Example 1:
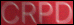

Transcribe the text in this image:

CRPD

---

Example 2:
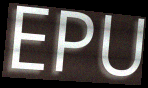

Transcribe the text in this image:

EPU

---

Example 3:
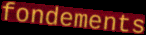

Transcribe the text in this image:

fondements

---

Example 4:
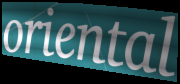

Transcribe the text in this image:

oriental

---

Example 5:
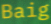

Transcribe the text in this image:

Baig